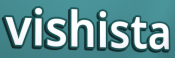
vishista